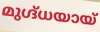
മുഗ്ദ്ധയായ്